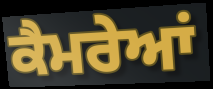
ਕੈਮਰੇਆਂ